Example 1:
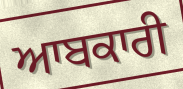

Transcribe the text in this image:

ਆਬਕਾਰੀ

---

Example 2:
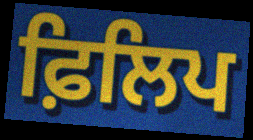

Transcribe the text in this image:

ਫ਼ਿਲਿਪ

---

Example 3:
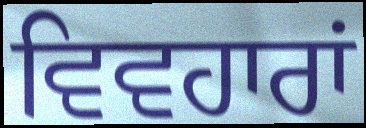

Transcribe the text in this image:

ਵਿਵਹਾਰਾਂ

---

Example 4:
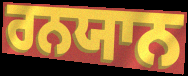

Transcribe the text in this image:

ਰਨਯਾਨ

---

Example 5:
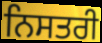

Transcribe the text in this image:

ਨਿਸਤਰੀ